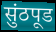
सुंठपूड